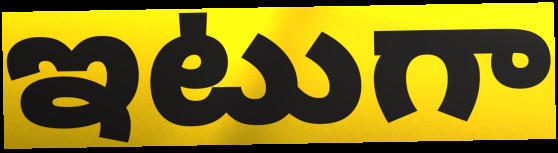
ఇటుగా